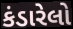
કંડારેલો